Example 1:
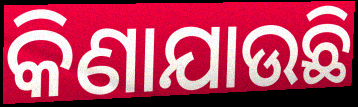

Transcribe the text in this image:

କିଣାଯାଉଛି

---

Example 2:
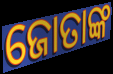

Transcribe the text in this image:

ଜୋତାଙ୍କ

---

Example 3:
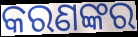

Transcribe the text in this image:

କରଣଙ୍କର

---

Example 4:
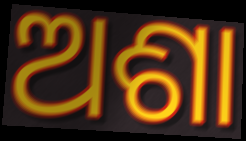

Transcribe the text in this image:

ଅଶା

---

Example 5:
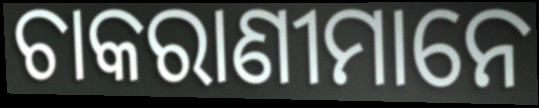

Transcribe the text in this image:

ଚାକରାଣୀମାନେ